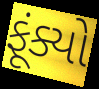
ફૂંક્યો